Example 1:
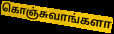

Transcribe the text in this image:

கொஞ்சுவாங்களா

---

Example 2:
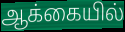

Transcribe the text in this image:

ஆக்கையில்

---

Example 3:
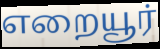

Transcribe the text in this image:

எறையூர்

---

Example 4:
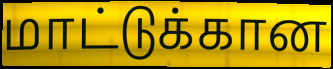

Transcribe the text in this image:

மாட்டுக்கான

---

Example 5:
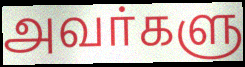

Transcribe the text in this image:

அவர்களு